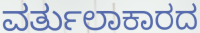
ವರ್ತುಲಾಕಾರದ